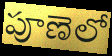
పూణెలో